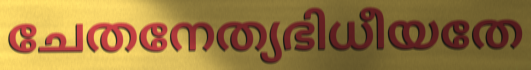
ചേതനേത്യഭിധീയതേ